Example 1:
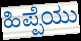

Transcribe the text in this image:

ಹಿಪ್ಪೆಯು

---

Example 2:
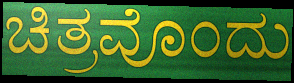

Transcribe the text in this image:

ಚಿತ್ರವೊಂದು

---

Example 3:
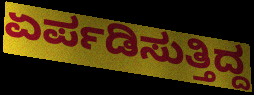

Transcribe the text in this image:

ಏರ್ಪಡಿಸುತ್ತಿದ್ದ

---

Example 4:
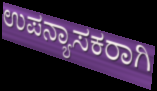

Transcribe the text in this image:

ಉಪನ್ಯಾಸಕರಾಗಿ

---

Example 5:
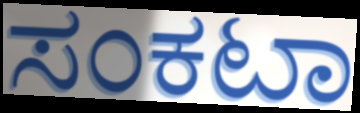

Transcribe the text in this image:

ಸಂಕಟಾ